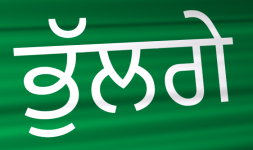
ਭੁੱਲਗੇ